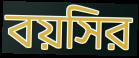
বয়সির